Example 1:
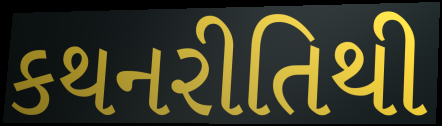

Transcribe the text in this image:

કથનરીતિથી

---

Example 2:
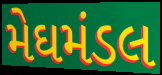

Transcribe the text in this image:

મેઘમંડલ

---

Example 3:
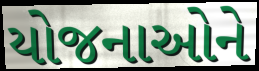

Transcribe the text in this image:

યોજનાઓને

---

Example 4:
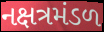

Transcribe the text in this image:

નક્ષત્રમંડળ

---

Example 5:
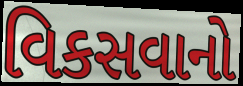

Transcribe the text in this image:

વિકસવાનો